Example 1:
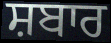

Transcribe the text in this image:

ਸ਼ਬਾਰ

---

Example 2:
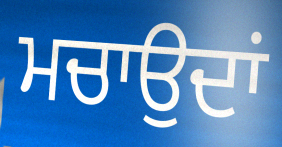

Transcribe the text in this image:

ਮਚਾਉਦਾਂ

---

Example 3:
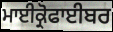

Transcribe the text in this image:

ਮਾਈਕ੍ਰੋਫਾਈਬਰ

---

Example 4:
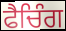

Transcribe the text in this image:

ਫੈਚਿੰਗ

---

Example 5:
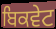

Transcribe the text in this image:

ਬਿਕਵੇਟ